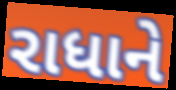
રાધાને